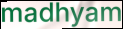
madhyam